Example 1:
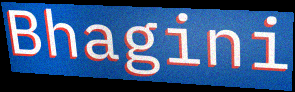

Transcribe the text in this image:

Bhagini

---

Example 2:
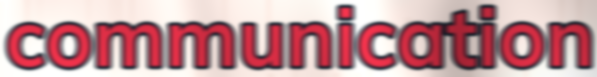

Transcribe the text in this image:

communication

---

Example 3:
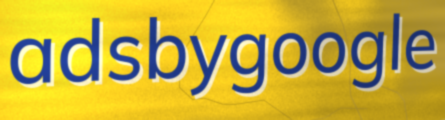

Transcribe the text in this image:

adsbygoogle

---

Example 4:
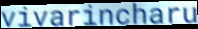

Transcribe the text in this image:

vivarincharu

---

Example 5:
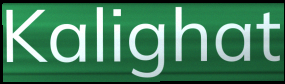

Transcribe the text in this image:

Kalighat